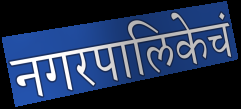
नगरपालिकेचं